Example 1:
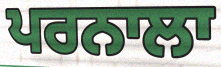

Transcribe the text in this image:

ਪਰਨਾਲਾ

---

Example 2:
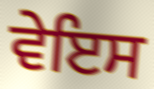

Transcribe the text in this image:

ਵੇਇਸ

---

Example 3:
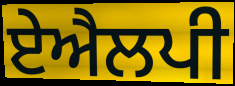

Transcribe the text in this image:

ਏਐਲਪੀ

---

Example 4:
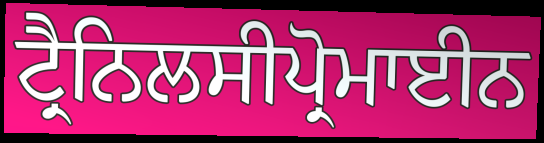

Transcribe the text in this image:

ਟ੍ਰੈਨਿਲਸੀਪ੍ਰੋਮਾਈਨ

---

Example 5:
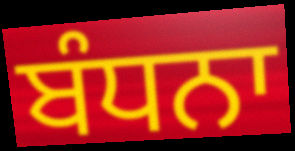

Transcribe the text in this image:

ਬੰਧਨਾ